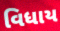
વિધાય